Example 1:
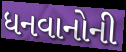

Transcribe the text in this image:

ધનવાનોની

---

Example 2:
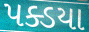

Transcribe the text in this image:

પક્ડયા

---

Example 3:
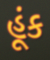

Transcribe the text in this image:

હૂંક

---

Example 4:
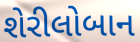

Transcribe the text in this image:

શેરીલોબાન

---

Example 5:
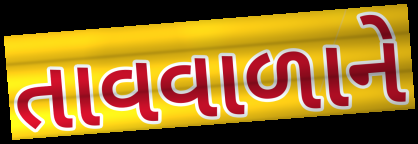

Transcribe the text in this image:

તાવવાળાને